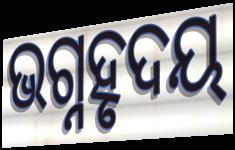
ଭଗ୍ନହୃଦୟ